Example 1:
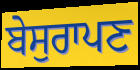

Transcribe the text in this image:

ਬੇਸੁਰਾਪਣ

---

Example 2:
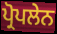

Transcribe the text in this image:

ਪ੍ਰੋਪਲੇਨ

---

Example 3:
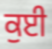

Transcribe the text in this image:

ਕੁਈ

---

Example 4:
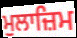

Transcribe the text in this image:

ਮੁਲਾਜ਼ਿਮ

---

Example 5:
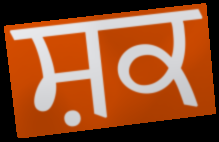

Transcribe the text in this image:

ਸ਼ਕ